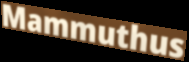
Mammuthus